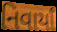
નિવાર્યાં